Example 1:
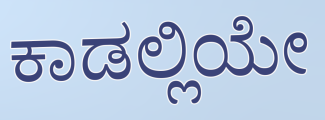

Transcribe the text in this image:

ಕಾಡಲ್ಲಿಯೇ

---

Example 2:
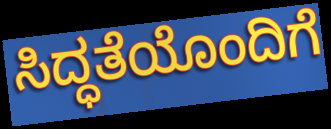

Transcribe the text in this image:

ಸಿದ್ಧತೆಯೊಂದಿಗೆ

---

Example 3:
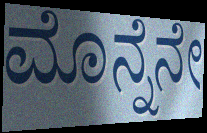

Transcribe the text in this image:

ಮೊನ್ನೆನೇ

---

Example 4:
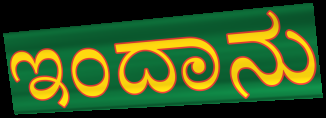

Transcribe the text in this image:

ಇಂದಾನು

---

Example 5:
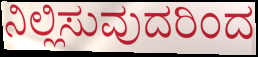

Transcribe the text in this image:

ನಿಲ್ಲಿಸುವುದರಿಂದ